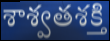
శాశ్వతశక్తి